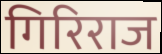
गिरिराज